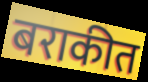
बराकीत